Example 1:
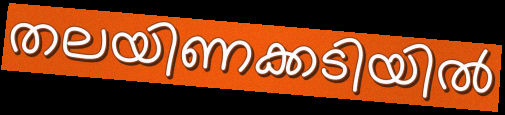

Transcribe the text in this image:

തലയിണക്കടിയിൽ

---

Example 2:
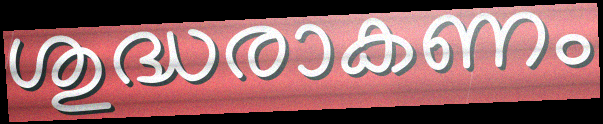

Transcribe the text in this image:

ശുദ്ധരാകണം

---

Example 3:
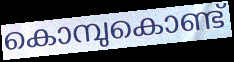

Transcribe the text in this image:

കൊമ്പുകൊണ്ട്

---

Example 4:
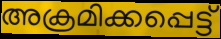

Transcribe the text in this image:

അക്രമിക്കപ്പെട്ട്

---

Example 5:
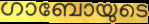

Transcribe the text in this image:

ഗാബോയുടെ